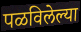
पळविलेल्या